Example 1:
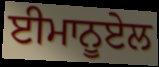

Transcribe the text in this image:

ਈਮਾਨੂਏਲ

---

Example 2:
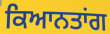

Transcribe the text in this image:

ਕਿਆਨਤਾਂਗ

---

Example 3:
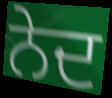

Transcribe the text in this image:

ਨੇਦ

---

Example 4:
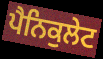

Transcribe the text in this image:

ਪੈਨਿਕੁਲੇਟ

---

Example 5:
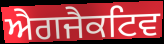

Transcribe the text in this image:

ਐਗਜੈਕਟਿਵ